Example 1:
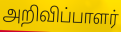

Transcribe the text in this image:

அறிவிப்பாளர்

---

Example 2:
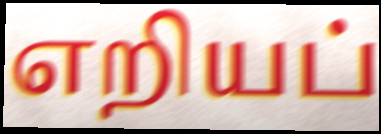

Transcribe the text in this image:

எறியப்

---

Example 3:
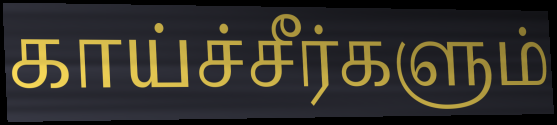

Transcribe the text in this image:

காய்ச்சீர்களும்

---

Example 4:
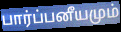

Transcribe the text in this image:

பார்ப்பனீயமும்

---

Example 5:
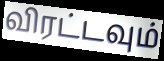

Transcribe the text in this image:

விரட்டவும்